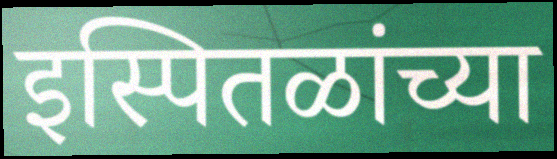
इस्पितळांच्या